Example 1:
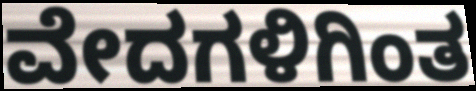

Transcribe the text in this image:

ವೇದಗಳಿಗಿಂತ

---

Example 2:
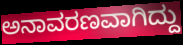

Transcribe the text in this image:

ಅನಾವರಣವಾಗಿದ್ದು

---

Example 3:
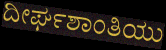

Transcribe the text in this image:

ದೀರ್ಘಶಾಂತಿಯು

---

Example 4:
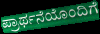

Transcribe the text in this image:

ಪ್ರಾರ್ಥನೆಯೊಂದಿಗೆ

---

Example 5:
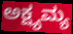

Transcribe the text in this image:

ಅಕ್ಷ್ಯಮ್ಯ